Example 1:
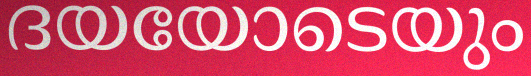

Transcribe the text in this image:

ദയയോടെയും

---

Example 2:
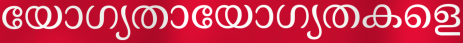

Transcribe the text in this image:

യോഗ്യതായോഗ്യതകളെ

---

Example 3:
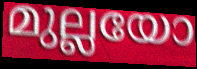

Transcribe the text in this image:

മുല്ലയോ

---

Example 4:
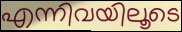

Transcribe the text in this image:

എന്നിവയിലൂടെ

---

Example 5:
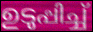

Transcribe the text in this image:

ഉടുപ്പിച്ച്